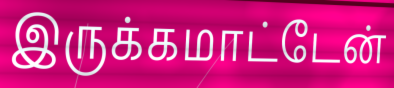
இருக்கமாட்டேன்